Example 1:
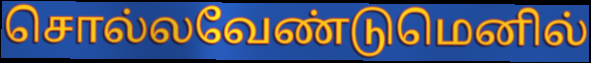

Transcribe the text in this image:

சொல்லவேண்டுமெனில்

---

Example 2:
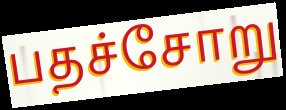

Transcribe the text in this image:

பதச்சோறு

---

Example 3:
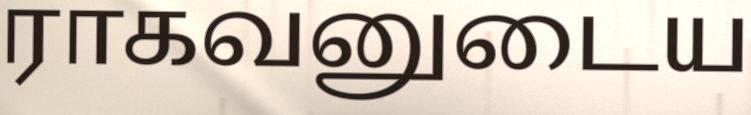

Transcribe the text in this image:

ராகவனுடைய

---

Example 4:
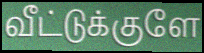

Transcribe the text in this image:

வீட்டுக்குளே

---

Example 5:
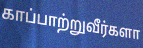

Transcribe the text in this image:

காப்பாற்றுவீர்களா